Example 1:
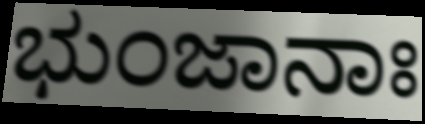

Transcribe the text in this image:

ಭುಂಜಾನಾಃ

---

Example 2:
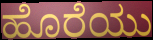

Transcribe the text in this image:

ಹೊರೆಯು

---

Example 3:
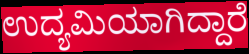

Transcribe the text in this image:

ಉದ್ಯಮಿಯಾಗಿದ್ದಾರೆ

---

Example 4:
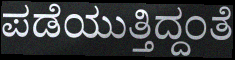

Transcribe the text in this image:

ಪಡೆಯುತ್ತಿದ್ದಂತೆ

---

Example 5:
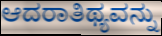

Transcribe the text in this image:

ಆದರಾತಿಥ್ಯವನ್ನು